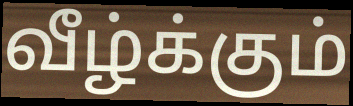
வீழ்க்கும்